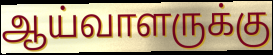
ஆய்வாளருக்கு